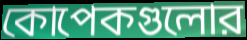
কোপেকগুলোর